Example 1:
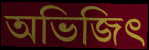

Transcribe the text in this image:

অভিজিৎ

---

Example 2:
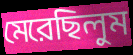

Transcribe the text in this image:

মেরেছিলুম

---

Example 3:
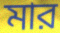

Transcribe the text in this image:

মার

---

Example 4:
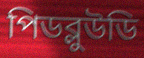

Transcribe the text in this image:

পিডব্লুউডি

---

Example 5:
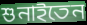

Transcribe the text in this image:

শুনাইতেন